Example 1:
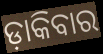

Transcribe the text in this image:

ଡ଼ାକିବାର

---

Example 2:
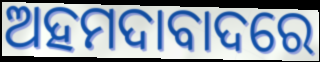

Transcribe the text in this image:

ଅହମଦାବାଦରେ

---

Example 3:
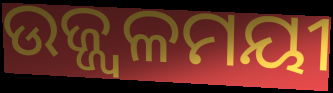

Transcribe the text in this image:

ଉଜ୍ଜ୍ୱଳମୟୀ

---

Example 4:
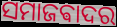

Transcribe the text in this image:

ସମାଜଵାଦର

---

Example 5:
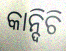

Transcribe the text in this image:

କାନ୍ଦିଚି